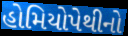
હોમિયોપેથીનો